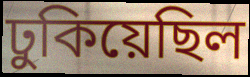
ঢুকিয়েছিল